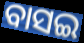
ବାସଇ